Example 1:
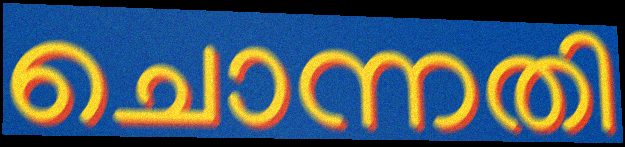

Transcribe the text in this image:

ചൊന്നതി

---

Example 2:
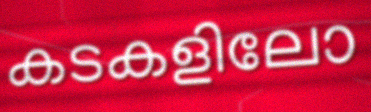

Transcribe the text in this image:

കടകളിലോ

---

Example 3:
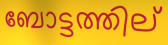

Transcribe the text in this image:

ബോട്ടത്തില്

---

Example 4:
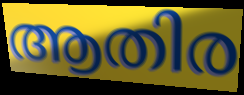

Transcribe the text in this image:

ആതിര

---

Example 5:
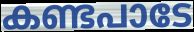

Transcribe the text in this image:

കണ്ടപാടേ